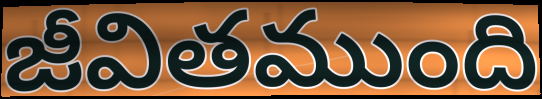
జీవితముంది